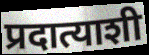
प्रदात्याशी